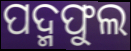
ପଦ୍ମଫୁଲ